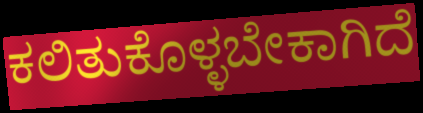
ಕಲಿತುಕೊಳ್ಳಬೇಕಾಗಿದೆ